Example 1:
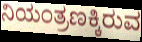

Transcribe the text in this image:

ನಿಯಂತ್ರಣಕ್ಕಿರುವ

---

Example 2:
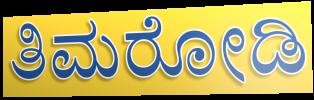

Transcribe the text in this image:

ತಿಮರೋಡಿ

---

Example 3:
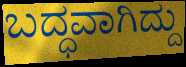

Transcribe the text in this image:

ಬದ್ಧವಾಗಿದ್ದು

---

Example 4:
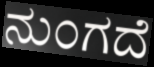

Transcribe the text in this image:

ನುಂಗದೆ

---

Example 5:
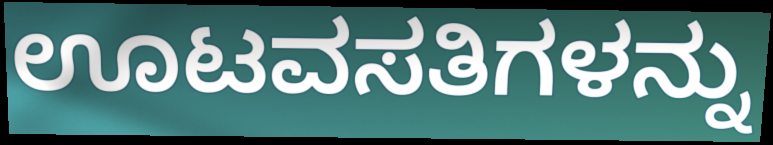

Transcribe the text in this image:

ಊಟವಸತಿಗಳನ್ನು